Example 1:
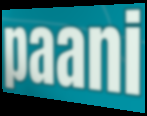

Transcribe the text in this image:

paani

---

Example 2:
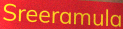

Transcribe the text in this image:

Sreeramula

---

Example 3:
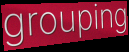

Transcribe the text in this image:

grouping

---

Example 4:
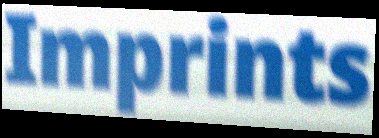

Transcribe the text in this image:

Imprints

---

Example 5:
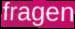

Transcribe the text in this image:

fragen